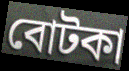
বোটকা